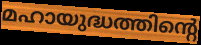
മഹായുദ്ധത്തിന്റെ